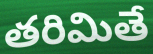
తరిమితే